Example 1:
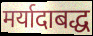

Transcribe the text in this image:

मर्यादाबद्ध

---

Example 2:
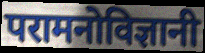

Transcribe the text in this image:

परामनोविज्ञानी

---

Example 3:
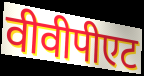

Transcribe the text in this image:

वीवीपीएट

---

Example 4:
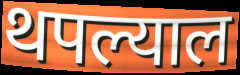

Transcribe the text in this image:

थपल्याल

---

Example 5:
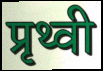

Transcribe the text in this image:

प्रृथ्वी